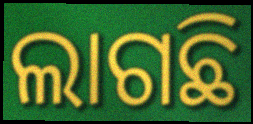
ଲାଗଛି